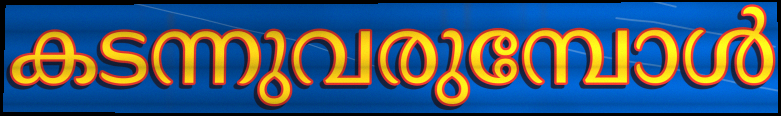
കടന്നുവരുമ്പോൾ